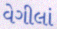
વેગીલાં